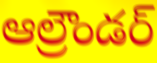
ఆల్రౌండర్